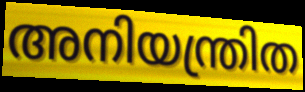
അനിയന്ത്രിത